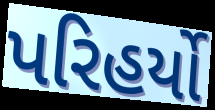
પરિહર્યો